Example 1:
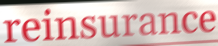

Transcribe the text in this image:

reinsurance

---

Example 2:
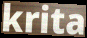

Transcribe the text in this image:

krita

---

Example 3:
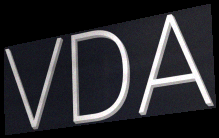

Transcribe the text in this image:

VDA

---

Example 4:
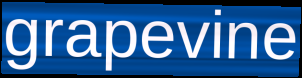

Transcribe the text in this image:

grapevine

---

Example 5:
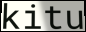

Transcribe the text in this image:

kitu